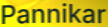
Pannikar